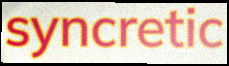
syncretic